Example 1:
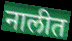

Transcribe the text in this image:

नालीत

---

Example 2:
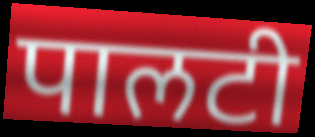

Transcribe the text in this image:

पालटी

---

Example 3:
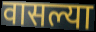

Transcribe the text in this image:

वासल्या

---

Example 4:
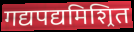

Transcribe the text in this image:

गद्यपद्यमिश्रित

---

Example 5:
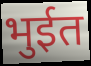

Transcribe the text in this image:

भुईत